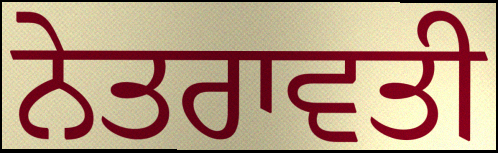
ਨੇਤਰਾਵਤੀ